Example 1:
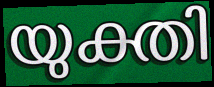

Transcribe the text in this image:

യുക്തി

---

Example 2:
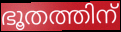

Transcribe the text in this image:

ഭൂതത്തിന്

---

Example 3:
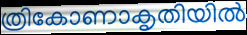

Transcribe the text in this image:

ത്രികോണാകൃതിയിൽ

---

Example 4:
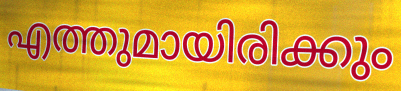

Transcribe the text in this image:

എത്തുമായിരിക്കും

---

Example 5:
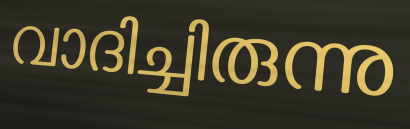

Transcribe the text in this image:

വാദിച്ചിരുന്നു